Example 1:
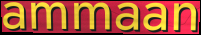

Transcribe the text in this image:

ammaan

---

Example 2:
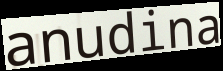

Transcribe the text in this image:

anudina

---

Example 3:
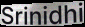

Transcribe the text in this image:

Srinidhi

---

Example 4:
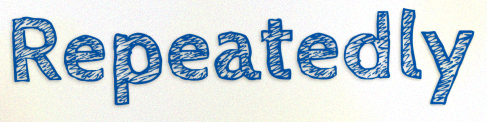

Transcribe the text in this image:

Repeatedly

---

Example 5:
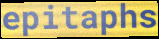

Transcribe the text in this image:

epitaphs